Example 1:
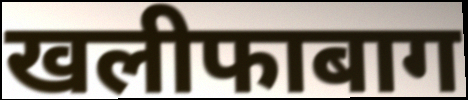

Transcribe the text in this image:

खलीफाबाग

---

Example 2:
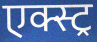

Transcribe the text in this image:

एक्स्ट्र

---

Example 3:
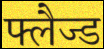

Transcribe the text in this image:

फ्लैज्ड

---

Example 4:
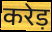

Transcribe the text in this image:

करेड़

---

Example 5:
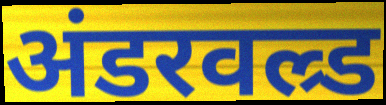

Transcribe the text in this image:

अंडरवल्र्ड